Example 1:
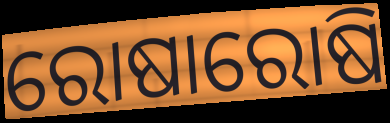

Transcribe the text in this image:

ରୋଷାରୋଷି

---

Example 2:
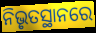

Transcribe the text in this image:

ନିଭୃତସ୍ଥାନରେ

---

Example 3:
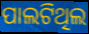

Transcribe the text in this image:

ପାଲଟିଥିଲ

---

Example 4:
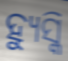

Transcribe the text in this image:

ହ୍ୟୁସ୍କି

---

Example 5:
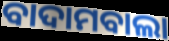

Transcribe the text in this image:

ବାଦାମବାଲା